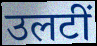
उलटीं